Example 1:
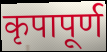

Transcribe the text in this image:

कृपापूर्ण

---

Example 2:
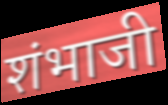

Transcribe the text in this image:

शंभाजी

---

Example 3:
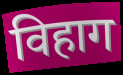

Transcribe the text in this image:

विहाग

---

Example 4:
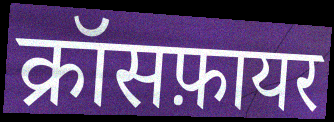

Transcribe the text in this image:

क्रॉसफ़ायर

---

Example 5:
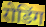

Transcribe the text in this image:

रोडिंग